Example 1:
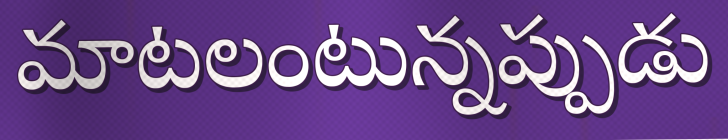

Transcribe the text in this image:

మాటలంటున్నప్పుడు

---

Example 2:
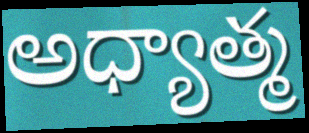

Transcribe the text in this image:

అధ్యాత్మ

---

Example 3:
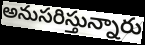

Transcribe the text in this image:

అనుసరిస్తున్నారు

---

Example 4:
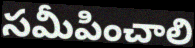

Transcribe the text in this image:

సమీపించాలి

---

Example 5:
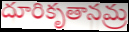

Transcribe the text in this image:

దూరికృతానమ్ర